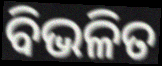
ବିଭଳିତ